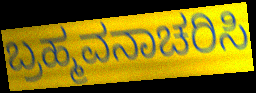
ಬ್ರಹ್ಮವನಾಚರಿಸಿ